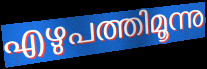
എഴുപത്തിമൂന്നു